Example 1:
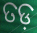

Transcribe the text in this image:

ତଡ଼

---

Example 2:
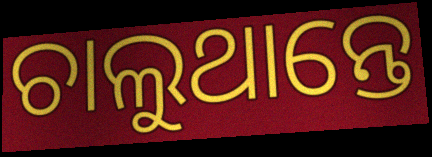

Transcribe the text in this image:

ଚାଲୁଥାନ୍ତେ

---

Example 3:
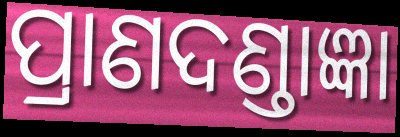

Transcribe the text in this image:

ପ୍ରାଣଦଣ୍ଡାଜ୍ଞା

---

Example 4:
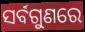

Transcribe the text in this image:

ସର୍ବଗୁଣରେ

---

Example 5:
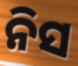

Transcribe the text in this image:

ନିସ